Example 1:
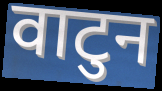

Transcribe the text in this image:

वाटुन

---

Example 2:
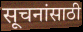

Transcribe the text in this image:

सूचनांसाठी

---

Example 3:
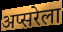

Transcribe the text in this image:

अप्सरेला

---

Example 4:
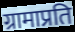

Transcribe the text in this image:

ग्रामाप्रति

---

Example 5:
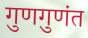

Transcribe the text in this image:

गुणगुणंत